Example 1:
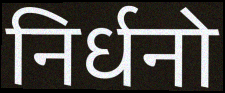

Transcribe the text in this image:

निर्धनो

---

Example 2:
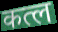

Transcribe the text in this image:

कत्ल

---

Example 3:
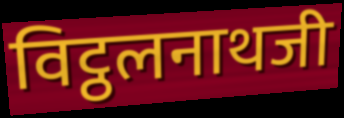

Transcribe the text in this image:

विट्ठलनाथजी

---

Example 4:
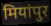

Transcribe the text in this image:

मियांपुर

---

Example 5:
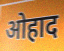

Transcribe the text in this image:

ओहाद